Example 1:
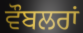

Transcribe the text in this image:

ਵੌਬਲਰਾਂ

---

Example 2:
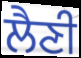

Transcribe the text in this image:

ਲੈਣੀ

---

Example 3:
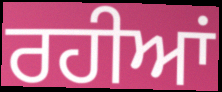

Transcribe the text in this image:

ਰਹੀਆਂ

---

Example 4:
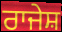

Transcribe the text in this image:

ਰਾਜੇਸ਼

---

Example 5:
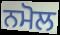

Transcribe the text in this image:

ਨਮੋਲ